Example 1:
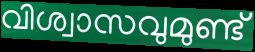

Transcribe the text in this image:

വിശ്വാസവുമുണ്ട്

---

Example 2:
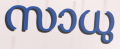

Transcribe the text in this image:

സാധു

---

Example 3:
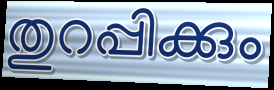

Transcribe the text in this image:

തുറപ്പിക്കും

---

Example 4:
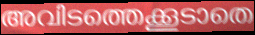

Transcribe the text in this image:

അവിടത്തെക്കൂടാതെ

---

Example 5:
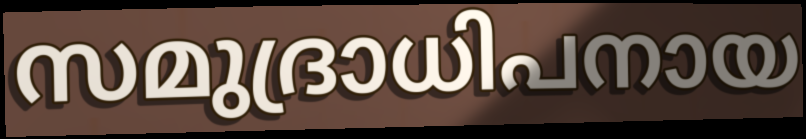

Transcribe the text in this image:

സമുദ്രാധിപനായ